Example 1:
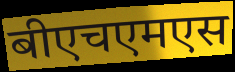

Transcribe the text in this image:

बीएचएमएस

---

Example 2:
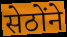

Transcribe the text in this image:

सेठोंने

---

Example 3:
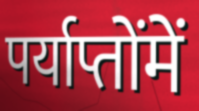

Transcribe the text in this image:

पर्याप्तोंमें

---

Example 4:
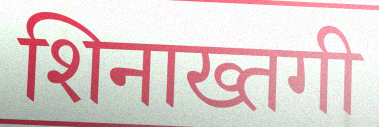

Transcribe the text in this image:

शिनाख्तगी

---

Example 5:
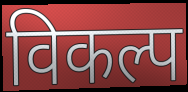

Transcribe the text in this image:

विकल्प